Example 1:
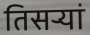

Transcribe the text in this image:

तिसऱ्यां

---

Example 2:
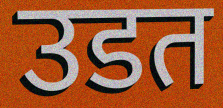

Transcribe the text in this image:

उडत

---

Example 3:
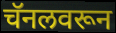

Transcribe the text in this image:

चॅनलवरून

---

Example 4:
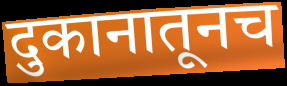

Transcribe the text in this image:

दुकानातूनच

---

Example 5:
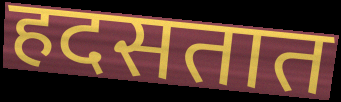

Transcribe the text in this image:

हदसतात